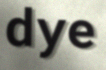
dye